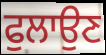
ਫੁਲਾਉਣ